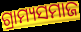
ଗ୍ରାମ୍ୟସମାଜ